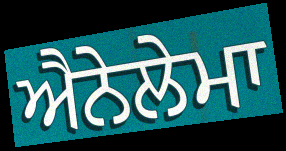
ਐਨੇਲੇਮਾ